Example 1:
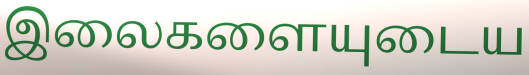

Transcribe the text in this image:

இலைகளையுடைய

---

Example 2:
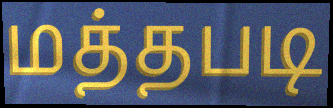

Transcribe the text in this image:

மத்தபடி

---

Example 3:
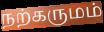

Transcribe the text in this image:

நற்கருமம்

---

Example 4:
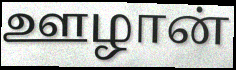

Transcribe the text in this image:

ஊழான்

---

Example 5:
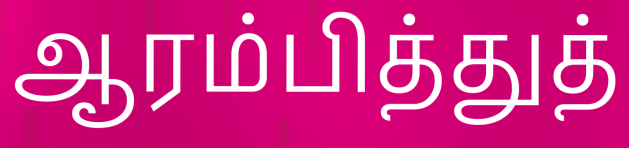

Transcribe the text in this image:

ஆரம்பித்துத்